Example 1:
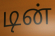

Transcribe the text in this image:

டின்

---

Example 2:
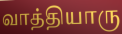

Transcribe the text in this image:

வாத்தியாரு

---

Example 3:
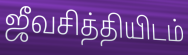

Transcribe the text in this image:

ஜீவசித்தியிடம்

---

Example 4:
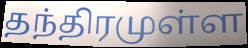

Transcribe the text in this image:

தந்திரமுள்ள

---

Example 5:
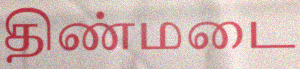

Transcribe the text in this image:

திண்மடை